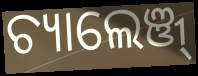
ଚ୍ୟାଲେଞ୍ଜ୍